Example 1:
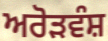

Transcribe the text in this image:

ਅਰੋੜਵੰਸ਼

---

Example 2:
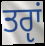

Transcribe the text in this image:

ਤਰੵਾਂ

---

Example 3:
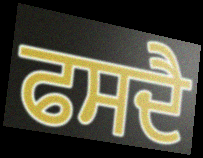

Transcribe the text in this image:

ਫਸਦੈ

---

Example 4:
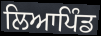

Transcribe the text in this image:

ਲਿਆਪਿੰਡ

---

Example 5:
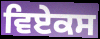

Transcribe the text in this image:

ਵਿਏਕਸ